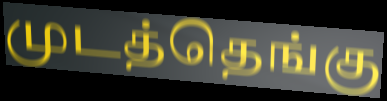
முடத்தெங்கு